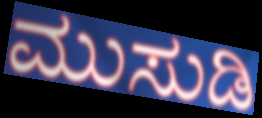
ಮುಸುಡಿ